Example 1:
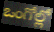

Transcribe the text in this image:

ఒంగోల్లో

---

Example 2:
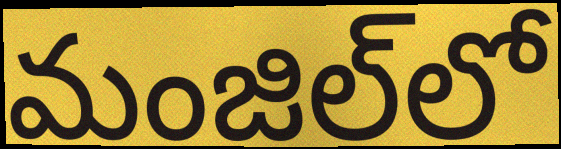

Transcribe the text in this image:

మంజిల్‌లో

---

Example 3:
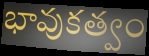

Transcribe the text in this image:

భావుకత్వం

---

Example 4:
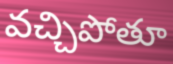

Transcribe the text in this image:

వచ్చిపోతూ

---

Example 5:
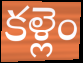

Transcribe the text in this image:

కళ్లెం